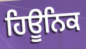
ਹਿਊਨਿਕ